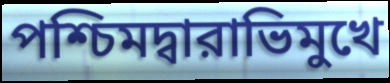
পশ্চিমদ্বারাভিমুখে